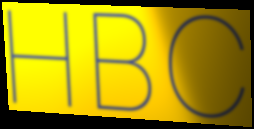
HBC